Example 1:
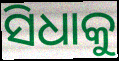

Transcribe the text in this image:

ସିଧାକୁ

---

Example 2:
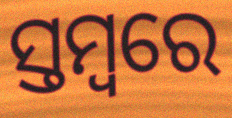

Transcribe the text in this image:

ସ୍ତମ୍ବରେ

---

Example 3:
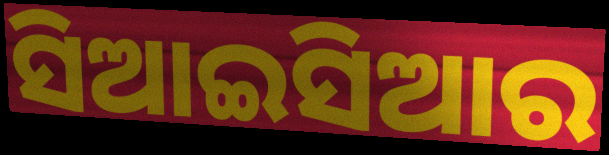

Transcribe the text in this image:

ସିଆଇସିଆର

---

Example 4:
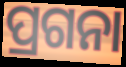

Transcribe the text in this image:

ପ୍ରଗନା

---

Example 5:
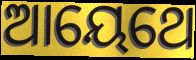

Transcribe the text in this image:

ଆୟେଥେ